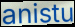
anistu